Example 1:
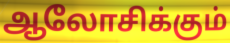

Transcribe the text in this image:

ஆலோசிக்கும்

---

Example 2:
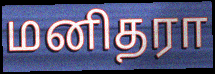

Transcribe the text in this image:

மனிதரா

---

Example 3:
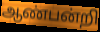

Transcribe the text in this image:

ஆண்பன்றி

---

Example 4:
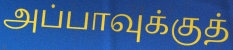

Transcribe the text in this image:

அப்பாவுக்குத்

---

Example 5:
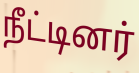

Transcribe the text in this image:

நீட்டினர்